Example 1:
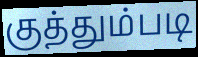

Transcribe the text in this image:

குத்தும்படி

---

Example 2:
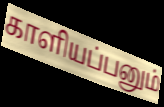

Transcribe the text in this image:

காளியப்பனும்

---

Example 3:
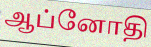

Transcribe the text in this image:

ஆப்னோதி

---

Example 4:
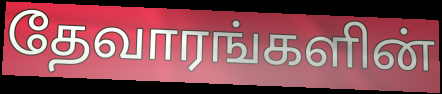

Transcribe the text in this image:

தேவாரங்களின்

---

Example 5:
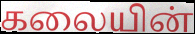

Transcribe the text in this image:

கலையின்